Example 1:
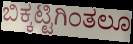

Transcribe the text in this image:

ಬಿಕ್ಕಟ್ಟಿಗಿಂತಲೂ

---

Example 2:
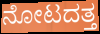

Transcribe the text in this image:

ನೋಟದತ್ತ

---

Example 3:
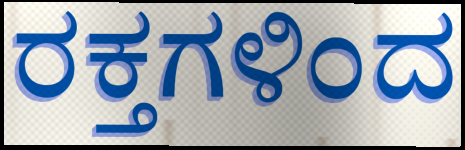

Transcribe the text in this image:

ರಕ್ತಗಳಿಂದ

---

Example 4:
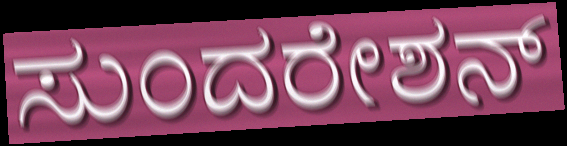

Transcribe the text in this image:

ಸುಂದರೇಶನ್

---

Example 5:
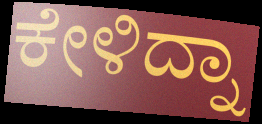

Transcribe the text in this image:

ಕೇಳಿದ್ನಾ